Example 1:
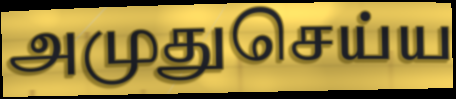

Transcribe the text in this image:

அமுதுசெய்ய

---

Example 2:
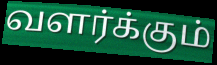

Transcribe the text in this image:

வளர்க்கும்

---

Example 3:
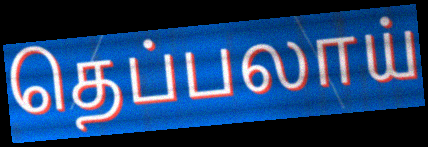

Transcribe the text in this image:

தெப்பலாய்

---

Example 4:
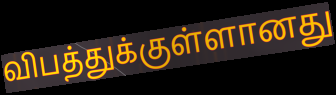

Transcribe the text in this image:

விபத்துக்குள்ளானது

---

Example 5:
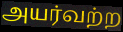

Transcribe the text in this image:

அயர்வற்ற